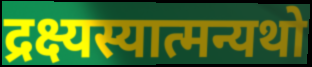
द्रक्ष्यस्यात्मन्यथो